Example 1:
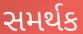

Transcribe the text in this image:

સમર્થક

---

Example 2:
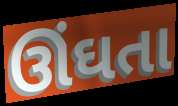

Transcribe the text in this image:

ઊંઘતા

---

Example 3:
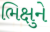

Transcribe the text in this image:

ભિક્ષુને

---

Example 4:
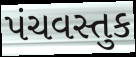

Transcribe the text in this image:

પંચવસ્તુક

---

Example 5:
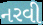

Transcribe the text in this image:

નરવી